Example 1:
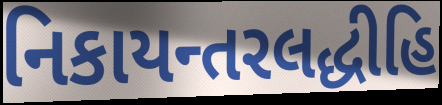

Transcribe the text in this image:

નિકાયન્તરલદ્ધીહિ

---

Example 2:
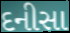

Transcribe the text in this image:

દનીસા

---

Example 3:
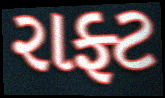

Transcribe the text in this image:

રાફ્ટ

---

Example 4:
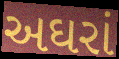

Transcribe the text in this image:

અઘરાં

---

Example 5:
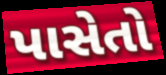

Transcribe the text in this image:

પાસેતો